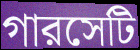
গারসেটি